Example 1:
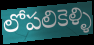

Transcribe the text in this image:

లోపలికెళ్ళి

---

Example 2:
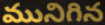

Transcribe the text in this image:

మునిగిన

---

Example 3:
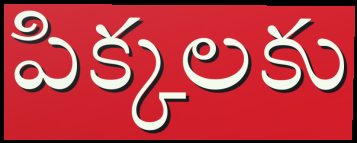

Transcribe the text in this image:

పిక్కలకు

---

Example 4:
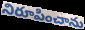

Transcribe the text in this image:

నిరూపించాను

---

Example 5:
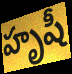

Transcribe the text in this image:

హృషీ